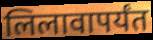
लिलावापर्यंत